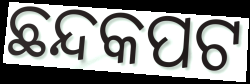
ଛନ୍ଦକପଟ